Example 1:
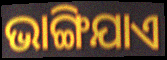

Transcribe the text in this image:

ଭାଙ୍ଗିଯାଏ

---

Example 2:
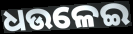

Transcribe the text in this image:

ଧଉଳେଇ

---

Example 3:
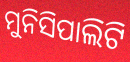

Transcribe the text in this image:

ମୁନିସିପାଲିଟି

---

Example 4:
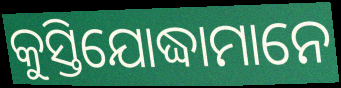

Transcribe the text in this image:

କୁସ୍ତିଯୋଦ୍ଧାମାନେ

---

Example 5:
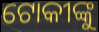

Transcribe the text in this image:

ଟୋକୀଙ୍କୁ